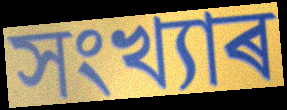
সংখ্যাৰ